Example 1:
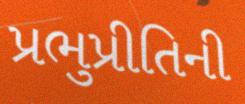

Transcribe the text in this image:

પ્રભુપ્રીતિની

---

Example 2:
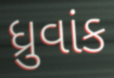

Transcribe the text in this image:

ધ્રુવાંક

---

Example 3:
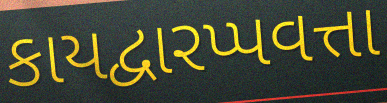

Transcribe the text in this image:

કાયદ્વારપ્પવત્તા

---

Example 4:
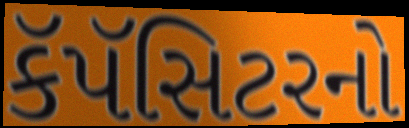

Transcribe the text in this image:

કૅપૅસિટરનો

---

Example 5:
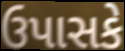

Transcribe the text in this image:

ઉપાસકે